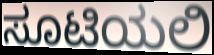
ಸೂಟಿಯಲಿ